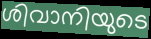
ശിവാനിയുടെ